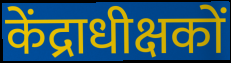
केंद्राधीक्षकों